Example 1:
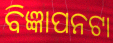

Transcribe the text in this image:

ବିଜ୍ଞାପନଟା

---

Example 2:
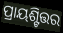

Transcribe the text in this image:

ପ୍ରାୟଶ୍ଟିତ୍ତର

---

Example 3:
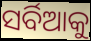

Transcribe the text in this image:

ସର୍ବିଆକୁ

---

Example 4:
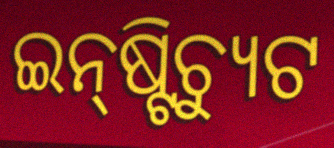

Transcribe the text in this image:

ଇନ୍‌ଷ୍ଟିଚ୍ୟୁଟ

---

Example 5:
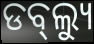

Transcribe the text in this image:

ଡବ୍‌ଲ୍ୟୁ